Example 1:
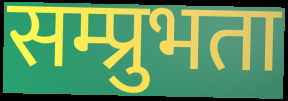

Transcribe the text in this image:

सम्प्रुभता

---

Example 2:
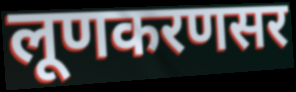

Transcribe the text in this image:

लूणकरणसर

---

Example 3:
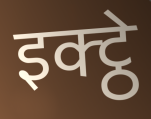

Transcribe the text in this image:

इक्ट्ठे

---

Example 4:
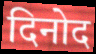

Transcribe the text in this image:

दिनोद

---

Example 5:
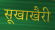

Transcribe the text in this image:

सूखाखैरी